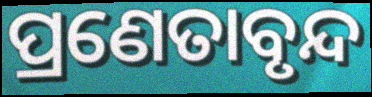
ପ୍ରଣେତାବୃନ୍ଦ